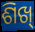
ଶିଖ୍